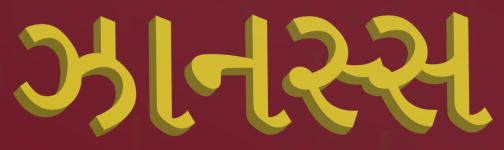
ઝાનસ્સ